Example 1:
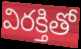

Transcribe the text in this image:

విరక్తితో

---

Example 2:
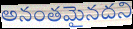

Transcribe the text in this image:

అనంతమైనదని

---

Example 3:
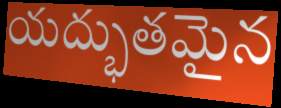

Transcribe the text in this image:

యద్భుతమైన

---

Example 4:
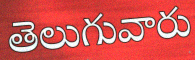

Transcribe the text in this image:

తెలుగువారు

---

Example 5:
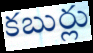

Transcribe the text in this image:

కబుర్లు